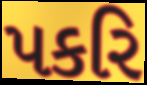
પકરિ